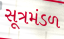
સૂત્રમંડળ